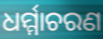
ଧର୍ମ୍ମାଚରଣ